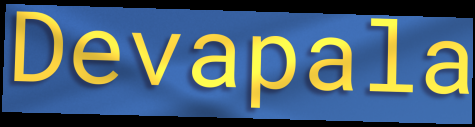
Devapala